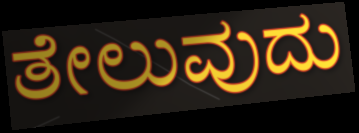
ತೇಲುವುದು